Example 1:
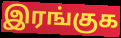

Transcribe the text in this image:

இரங்குக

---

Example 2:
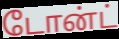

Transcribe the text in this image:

டோன்ட்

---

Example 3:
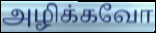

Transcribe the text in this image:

அழிக்கவோ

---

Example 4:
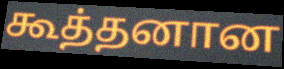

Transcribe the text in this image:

கூத்தனான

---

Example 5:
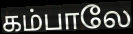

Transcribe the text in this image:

கம்பாலே